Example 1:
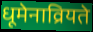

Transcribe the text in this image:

धूमेनाव्रियते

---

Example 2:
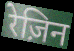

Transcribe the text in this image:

रेज़िन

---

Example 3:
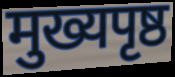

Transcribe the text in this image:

मुख्यपृष्ठ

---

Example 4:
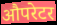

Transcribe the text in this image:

औपरेटर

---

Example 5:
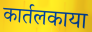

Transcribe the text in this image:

कार्तलकाया